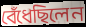
বেঁধেছিলেন